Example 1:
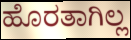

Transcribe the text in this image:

ಹೊರತಾಗಿಲ್ಲ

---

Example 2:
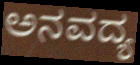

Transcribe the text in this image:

ಅನವದ್ಯ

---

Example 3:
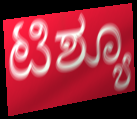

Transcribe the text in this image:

ಟಿಶ್ಯೂ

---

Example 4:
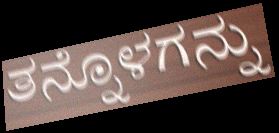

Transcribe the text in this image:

ತನ್ನೊಳಗನ್ನು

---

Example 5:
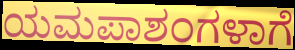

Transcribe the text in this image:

ಯಮಪಾಶಂಗಳಾಗೆ